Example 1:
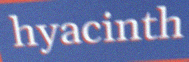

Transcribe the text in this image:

hyacinth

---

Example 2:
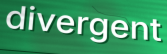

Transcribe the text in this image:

divergent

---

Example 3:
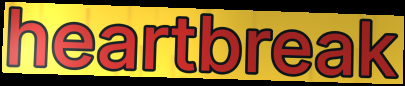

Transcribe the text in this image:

heartbreak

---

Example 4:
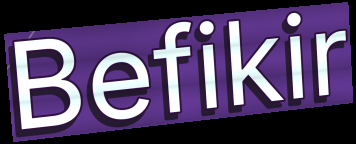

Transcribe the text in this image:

Befikir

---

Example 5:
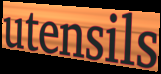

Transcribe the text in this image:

utensils